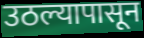
उठल्यापासून